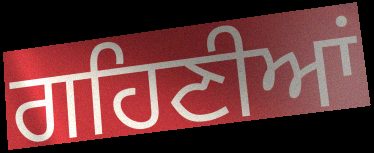
ਗਹਿਣੀਆਂ